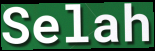
Selah